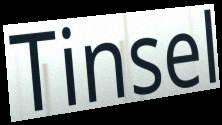
Tinsel